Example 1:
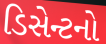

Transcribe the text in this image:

ડિસેન્ટનો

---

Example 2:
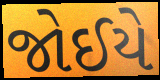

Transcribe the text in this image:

જોઈયે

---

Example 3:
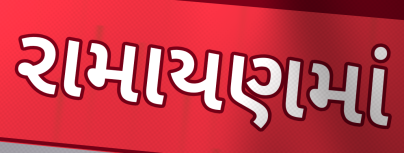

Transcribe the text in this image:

રામાયણમાં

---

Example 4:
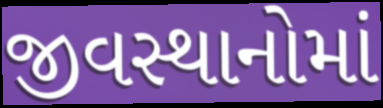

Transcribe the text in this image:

જીવસ્થાનોમાં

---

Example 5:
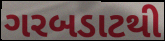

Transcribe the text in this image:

ગરબડાટથી